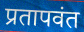
प्रतापवंत